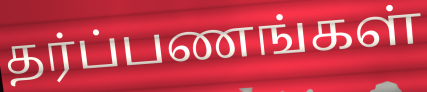
தர்ப்பணங்கள்